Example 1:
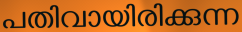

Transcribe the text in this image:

പതിവായിരിക്കുന്ന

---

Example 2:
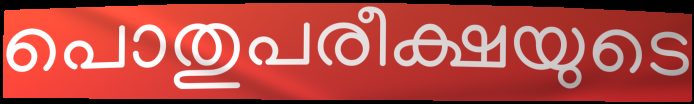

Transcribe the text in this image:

പൊതുപരീക്ഷയുടെ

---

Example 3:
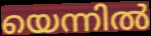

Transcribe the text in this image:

യെന്നിൽ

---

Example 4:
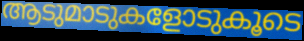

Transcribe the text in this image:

ആടുമാടുകളോടുകൂടെ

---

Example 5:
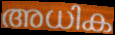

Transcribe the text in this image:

അധിക